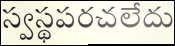
స్వస్థపరచలేదు